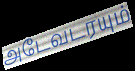
அடேவடரயும்